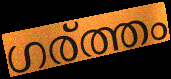
ഗര്ത്തം